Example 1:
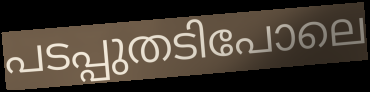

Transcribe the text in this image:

പടപ്പുതടിപോലെ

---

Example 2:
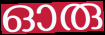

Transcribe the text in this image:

ഓരു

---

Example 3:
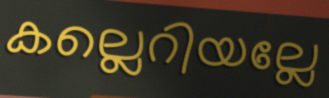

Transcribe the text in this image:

കല്ലെറിയല്ലേ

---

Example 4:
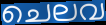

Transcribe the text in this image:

ചെലവ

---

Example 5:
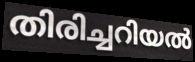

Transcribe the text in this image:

തിരിച്ചറിയൽ